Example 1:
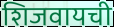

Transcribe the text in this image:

शिजवायची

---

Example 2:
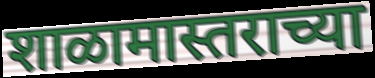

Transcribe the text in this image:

शाळामास्तराच्या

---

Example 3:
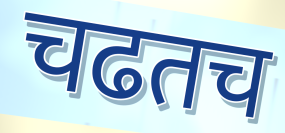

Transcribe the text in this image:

चढतच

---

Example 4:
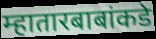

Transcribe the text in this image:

म्हातारबाबांकडे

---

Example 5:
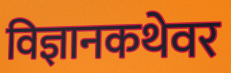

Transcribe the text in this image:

विज्ञानकथेवर